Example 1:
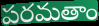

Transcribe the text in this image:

పరమతాం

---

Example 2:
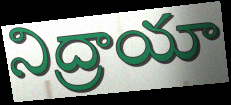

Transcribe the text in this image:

నిద్రాయా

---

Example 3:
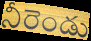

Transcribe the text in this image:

నీరెండు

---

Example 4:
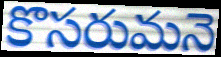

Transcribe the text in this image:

కొసరుమనె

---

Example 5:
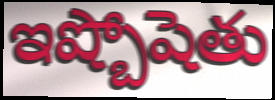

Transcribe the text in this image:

ఇష్బోషెతు